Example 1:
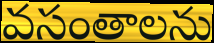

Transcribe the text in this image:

వసంతాలను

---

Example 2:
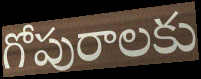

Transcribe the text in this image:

గోపురాలకు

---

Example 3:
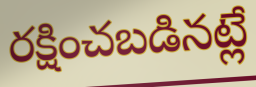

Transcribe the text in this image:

రక్షించబడినట్లే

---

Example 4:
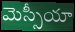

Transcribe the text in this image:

మెస్సీయా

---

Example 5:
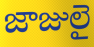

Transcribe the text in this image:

జాజులై